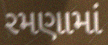
રમણામાં